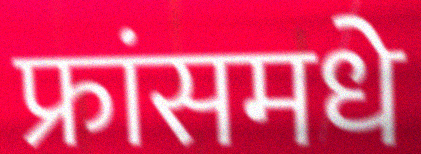
फ्रांसमधे